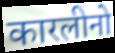
कारलीनो